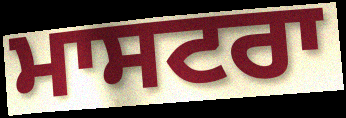
ਮਾਸਟਰਾ